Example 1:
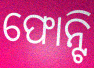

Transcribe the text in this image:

ଫୋନ୍ଟି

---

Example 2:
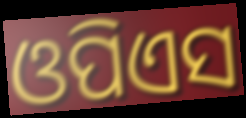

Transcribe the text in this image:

ଓପିଏସ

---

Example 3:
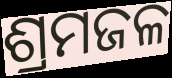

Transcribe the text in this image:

ଶ୍ରମଜଳ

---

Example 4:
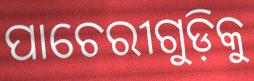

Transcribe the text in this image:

ପାଚେରୀଗୁଡ଼ିକୁ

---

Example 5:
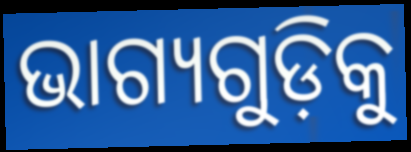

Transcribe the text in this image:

ଭାଗ୍ୟଗୁଡ଼ିକୁ